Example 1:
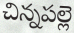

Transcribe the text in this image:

చిన్నపల్లె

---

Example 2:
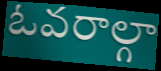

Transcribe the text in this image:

ఓవరాల్గా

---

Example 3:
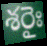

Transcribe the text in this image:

శరైః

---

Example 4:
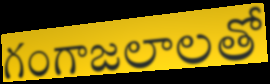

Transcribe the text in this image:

గంగాజలాలతో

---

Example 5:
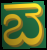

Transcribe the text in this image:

బె